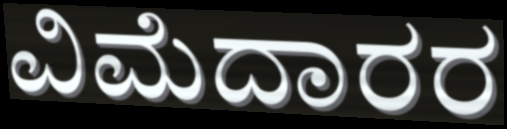
ವಿಮೆದಾರರ